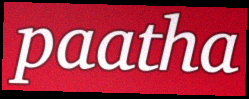
paatha